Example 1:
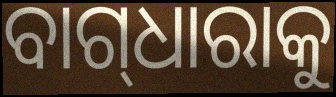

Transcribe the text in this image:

ବାଗ୍‌ଧାରାକୁ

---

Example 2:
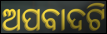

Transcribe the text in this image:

ଅପବାଦଟି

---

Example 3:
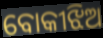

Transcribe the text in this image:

ବୋକୀଝିଅ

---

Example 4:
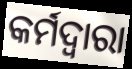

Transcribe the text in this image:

କର୍ମଦ୍ବାରା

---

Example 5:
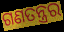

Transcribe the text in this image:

ଗଣତନ୍ତ୍ରର